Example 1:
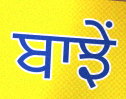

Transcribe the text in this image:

ਬਾਝੇਂ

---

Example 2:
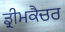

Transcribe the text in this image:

ਡ੍ਰੀਮਕੈਚਰ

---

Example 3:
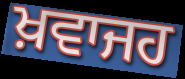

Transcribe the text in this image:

ਖ਼ਵਾਜਹ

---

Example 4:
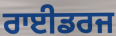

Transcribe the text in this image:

ਰਾਈਡਰਜ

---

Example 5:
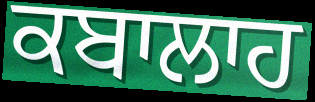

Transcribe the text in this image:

ਕਬਾਲਾਹ